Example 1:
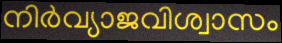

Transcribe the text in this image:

നിർവ്യാജവിശ്വാസം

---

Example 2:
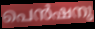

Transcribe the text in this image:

പെൻഷനു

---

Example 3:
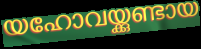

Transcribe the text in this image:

യഹോവയ്ക്കുണ്ടായ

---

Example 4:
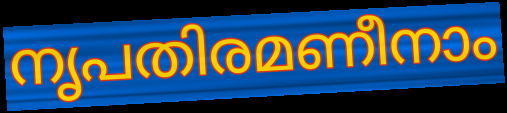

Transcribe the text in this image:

നൃപതിരമണീനാം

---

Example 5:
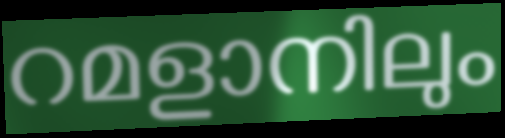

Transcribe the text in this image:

റമളാനിലും